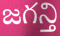
జగన్తి